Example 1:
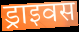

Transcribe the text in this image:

ड्राइवस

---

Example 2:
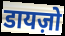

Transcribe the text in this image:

डायज़ो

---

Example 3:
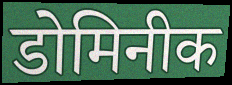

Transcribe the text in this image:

डोमिनीक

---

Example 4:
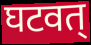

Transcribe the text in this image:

घटवत्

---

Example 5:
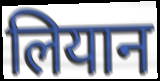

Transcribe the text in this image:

लियान